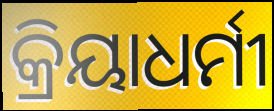
କ୍ରିୟାଧର୍ମୀ